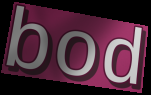
bod